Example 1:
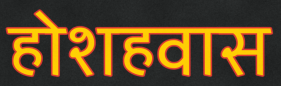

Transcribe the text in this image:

होशहवास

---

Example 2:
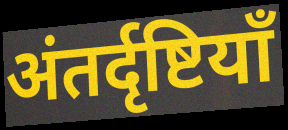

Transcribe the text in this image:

अंतर्दृष्टियाँ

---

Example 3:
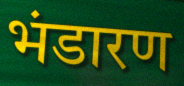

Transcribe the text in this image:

भंडारण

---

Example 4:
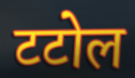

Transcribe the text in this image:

टटोल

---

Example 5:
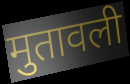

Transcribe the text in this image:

मुतावली